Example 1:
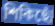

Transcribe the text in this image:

শিকিছোঁ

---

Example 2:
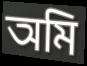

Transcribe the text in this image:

অমি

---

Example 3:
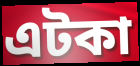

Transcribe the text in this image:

এটকা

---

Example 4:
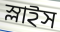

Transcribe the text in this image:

স্লাইস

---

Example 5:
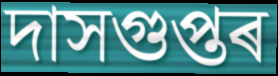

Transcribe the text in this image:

দাসগুপ্তৰ